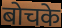
बोचके